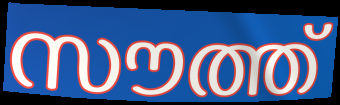
സൗത്ത്